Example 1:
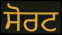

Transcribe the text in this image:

ਸੋਰਟ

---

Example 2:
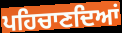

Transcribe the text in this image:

ਪਹਿਚਾਣਦਿਆਂ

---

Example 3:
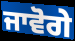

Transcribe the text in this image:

ਜਾਵੋਗੇ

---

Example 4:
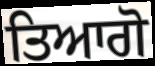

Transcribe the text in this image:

ਤਿਆਗੋ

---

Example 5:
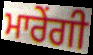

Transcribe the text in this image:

ਮਾਰੇਂਗੀ